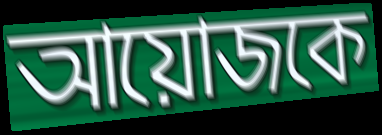
আয়োজকে